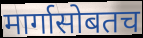
मार्गासोबतच